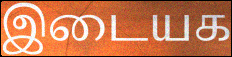
இடையக